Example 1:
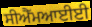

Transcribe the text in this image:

ਸੀਐੱਮਆਈਈ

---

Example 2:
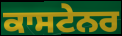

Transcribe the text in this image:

ਕਾਸਟੇਨਰ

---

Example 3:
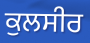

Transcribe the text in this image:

ਕੁਲਸੀਰ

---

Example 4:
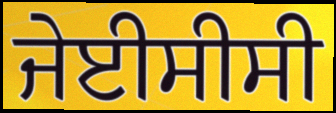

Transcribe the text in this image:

ਜੇਈਸੀਸੀ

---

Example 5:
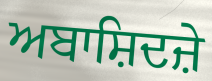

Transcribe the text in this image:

ਅਬਾਸ਼ਿਦਜ਼ੇ